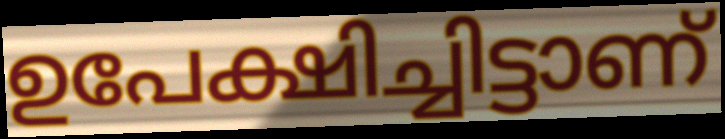
ഉപേക്ഷിച്ചിട്ടാണ്